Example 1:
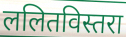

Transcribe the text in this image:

ललितविस्तरा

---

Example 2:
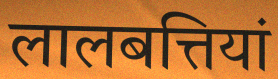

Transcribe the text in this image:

लालबत्तियां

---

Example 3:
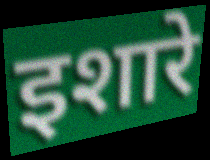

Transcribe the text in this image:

इशारे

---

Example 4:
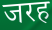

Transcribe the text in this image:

जरह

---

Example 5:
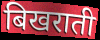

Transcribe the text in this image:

बिखराती